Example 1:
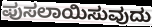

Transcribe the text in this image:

ಪುಸಲಾಯಿಸುವುದು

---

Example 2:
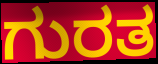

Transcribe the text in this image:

ಗುರತ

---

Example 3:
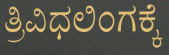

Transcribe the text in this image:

ತ್ರಿವಿಧಲಿಂಗಕ್ಕೆ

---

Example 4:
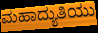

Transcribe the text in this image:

ಮಹಾದ್ಯುತಿಯು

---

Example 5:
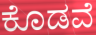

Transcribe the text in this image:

ಕೊಡವೆ